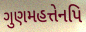
ગુણમહત્તેનપિ